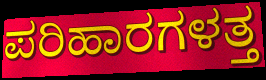
ಪರಿಹಾರಗಳತ್ತ